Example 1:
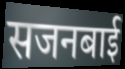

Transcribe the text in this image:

सजनबाई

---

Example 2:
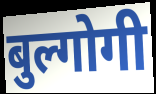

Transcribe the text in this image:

बुल्गोगी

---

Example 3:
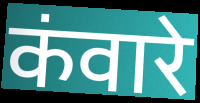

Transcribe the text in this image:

कंवारे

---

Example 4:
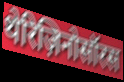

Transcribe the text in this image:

थेरिज़िनोसॉरस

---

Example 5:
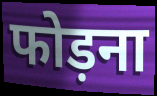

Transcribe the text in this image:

फोड़ना